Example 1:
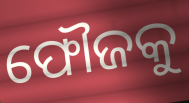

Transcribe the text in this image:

ଫୌଜକୁ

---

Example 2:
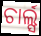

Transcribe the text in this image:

ଚାର୍ଲ୍ସ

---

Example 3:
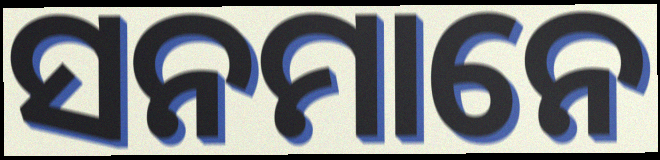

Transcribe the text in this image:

ସନମାନେ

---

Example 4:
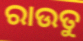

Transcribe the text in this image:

ରାଉତୁ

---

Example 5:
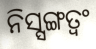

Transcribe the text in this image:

ନିସ୍ସଙ୍ଗତ୍ୱଂ